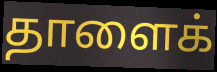
தாளைக்